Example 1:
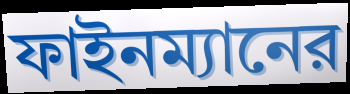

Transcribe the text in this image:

ফাইনম্যানের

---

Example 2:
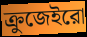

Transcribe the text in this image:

ক্রুজেইরো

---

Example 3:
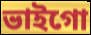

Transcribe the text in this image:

ভাইগো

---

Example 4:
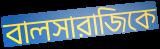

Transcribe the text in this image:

বালসারাজিকে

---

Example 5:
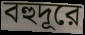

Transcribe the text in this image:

বহুদূরে